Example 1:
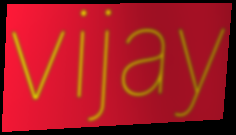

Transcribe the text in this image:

vijay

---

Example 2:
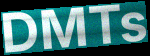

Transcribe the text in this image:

DMTs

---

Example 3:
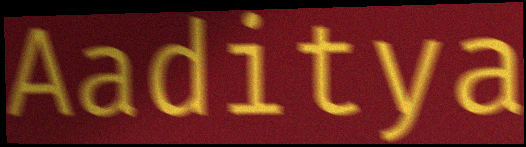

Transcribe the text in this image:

Aaditya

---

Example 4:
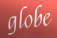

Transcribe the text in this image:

globe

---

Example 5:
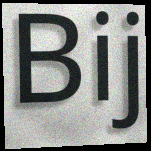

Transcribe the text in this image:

Bij